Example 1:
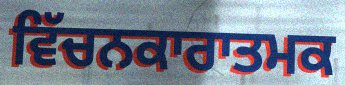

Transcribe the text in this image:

ਵਿੱਚਨਕਾਰਾਤਮਕ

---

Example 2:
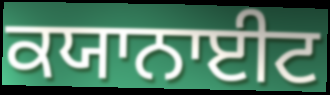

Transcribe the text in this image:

ਕਯਾਨਾਈਟ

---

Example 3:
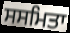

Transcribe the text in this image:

ਸਸਮਿਤਾ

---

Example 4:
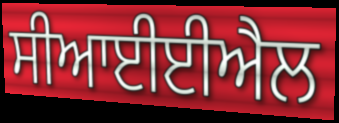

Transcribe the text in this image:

ਸੀਆਈਈਐਲ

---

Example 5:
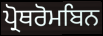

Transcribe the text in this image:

ਪ੍ਰੋਥਰੋਮਬਿਨ